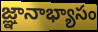
జ్ఞానాభ్యాసం